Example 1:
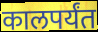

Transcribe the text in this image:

कालपर्यंत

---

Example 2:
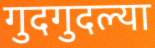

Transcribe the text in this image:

गुदगुदल्या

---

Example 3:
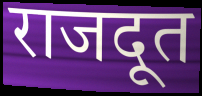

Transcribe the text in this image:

राजदूत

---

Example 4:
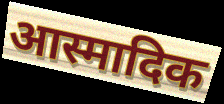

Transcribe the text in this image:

आस्मादिक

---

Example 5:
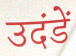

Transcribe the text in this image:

उदंडें